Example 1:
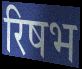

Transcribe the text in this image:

रिषभ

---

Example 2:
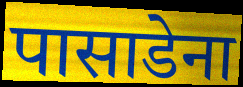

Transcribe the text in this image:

पासाडेना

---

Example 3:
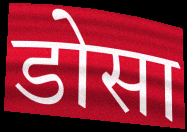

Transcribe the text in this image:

डोसा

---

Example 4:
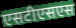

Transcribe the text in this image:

एसटीएसएस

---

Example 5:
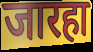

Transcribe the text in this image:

जारहा